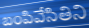
బంపివేసితిని